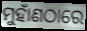
ମୁହାଁଣଠାରେ